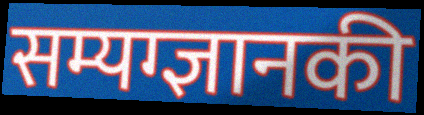
सम्यग्ज्ञानकी